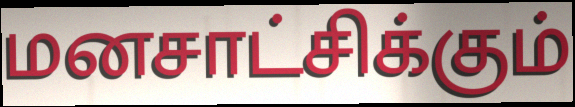
மனசாட்சிக்கும்